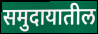
समुदायातील